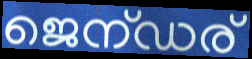
ജെന്ഡര്